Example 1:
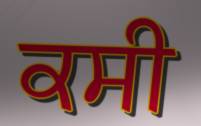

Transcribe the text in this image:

ਕਸੀ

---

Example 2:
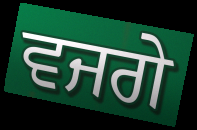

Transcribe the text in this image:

ਵਜਗੇ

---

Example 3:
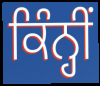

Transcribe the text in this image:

ਕਿੰਨ੍ਹੀਂ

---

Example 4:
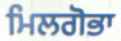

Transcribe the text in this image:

ਮਿਲਗੋਭਾ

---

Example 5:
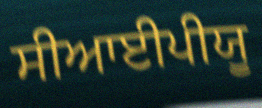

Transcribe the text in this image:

ਸੀਆਈਪੀਯੂ